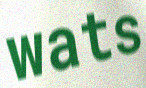
wats